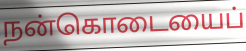
நன்கொடையைப்